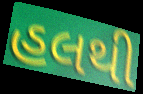
હલથી